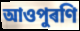
আওপুৰণি